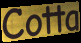
Cotta